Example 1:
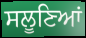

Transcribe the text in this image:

ਸਲੂਣਿਆਂ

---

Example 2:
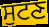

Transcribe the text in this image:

ਸੁਟਣ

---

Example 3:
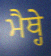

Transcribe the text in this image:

ਮੈਥ੍ਹੇ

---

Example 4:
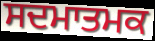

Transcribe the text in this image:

ਸਦਮਾਤਮਕ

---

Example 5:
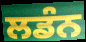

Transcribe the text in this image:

ਲਡੰਨ